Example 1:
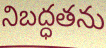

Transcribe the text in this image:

నిబద్ధతను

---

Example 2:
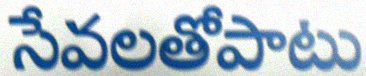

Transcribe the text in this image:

సేవలతోపాటు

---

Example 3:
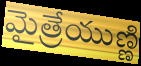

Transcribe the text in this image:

మైత్రేయుణ్ణి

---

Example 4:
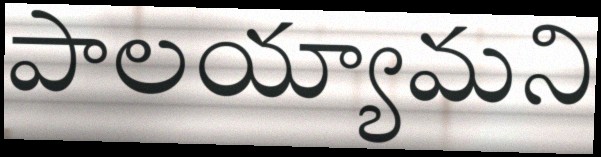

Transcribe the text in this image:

పాలయ్యామని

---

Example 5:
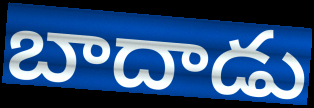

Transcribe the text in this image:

బాదాడు